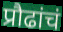
प्रौढांचं